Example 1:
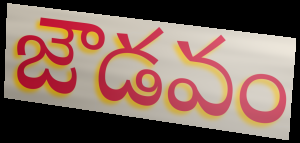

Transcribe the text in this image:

జౌడవం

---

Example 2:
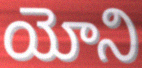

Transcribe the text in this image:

యోని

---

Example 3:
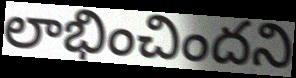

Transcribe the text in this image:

లాభించిందని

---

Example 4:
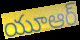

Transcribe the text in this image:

యూఆర్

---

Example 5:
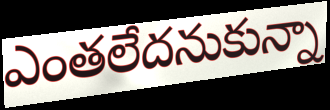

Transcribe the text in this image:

ఎంతలేదనుకున్నా